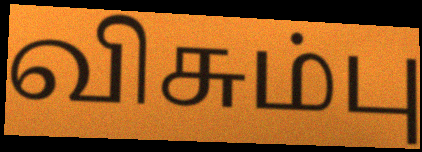
விசும்பு